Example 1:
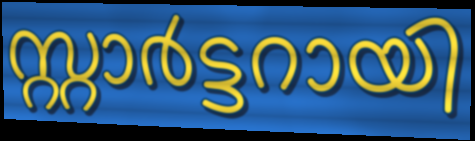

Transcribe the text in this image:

സ്റ്റാർട്ടറായി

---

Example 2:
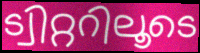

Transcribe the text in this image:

ട്വിറ്ററിലൂടെ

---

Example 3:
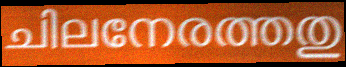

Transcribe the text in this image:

ചിലനേരത്തതു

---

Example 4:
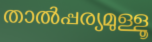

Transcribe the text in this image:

താൽപ്പര്യമുള്ളൂ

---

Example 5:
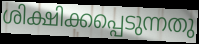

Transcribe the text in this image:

ശിക്ഷിക്കപ്പെടുന്നതു